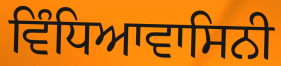
ਵਿੰਧਿਆਵਾਸਿਨੀ